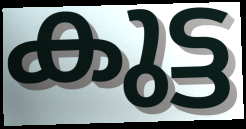
കുട്ട